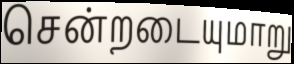
சென்றடையுமாறு